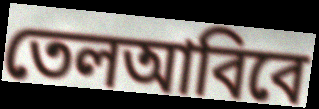
তেলআবিবে